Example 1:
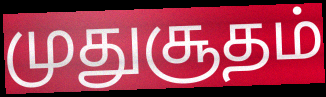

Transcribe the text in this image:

முதுசூதம்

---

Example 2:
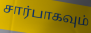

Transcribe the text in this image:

சார்பாகவும்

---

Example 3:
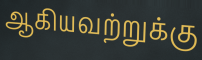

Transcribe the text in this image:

ஆகியவற்றுக்கு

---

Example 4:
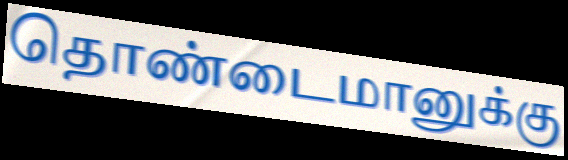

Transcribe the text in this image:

தொண்டைமானுக்கு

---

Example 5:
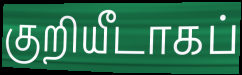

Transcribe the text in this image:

குறியீடாகப்